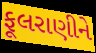
ફૂલરાણીને